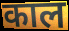
काल